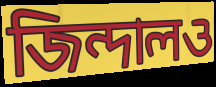
জিন্দালও